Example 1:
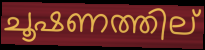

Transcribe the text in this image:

ചൂഷണത്തില്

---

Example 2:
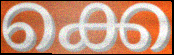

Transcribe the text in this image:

ക്കെ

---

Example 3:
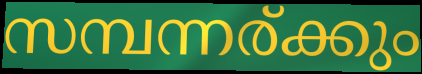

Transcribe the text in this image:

സമ്പന്നര്ക്കും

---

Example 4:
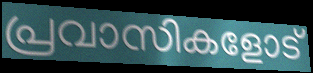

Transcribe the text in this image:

പ്രവാസികളോട്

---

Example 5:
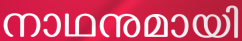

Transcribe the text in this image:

നാഥനുമായി